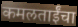
कमलताईंचा